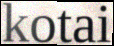
kotai